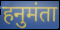
हनुमंता